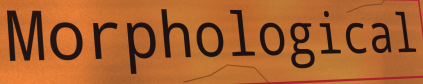
Morphological